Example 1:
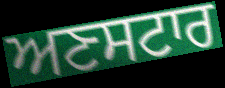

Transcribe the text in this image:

ਅਣਸਟਾਰ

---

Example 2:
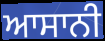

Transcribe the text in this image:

ਆਸਾਨੀ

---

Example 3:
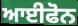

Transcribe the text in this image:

ਆਈਫੋਨ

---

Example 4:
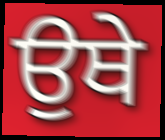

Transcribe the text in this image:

ਉਥੇ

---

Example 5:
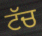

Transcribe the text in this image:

ਟੱਚ